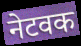
नेटवक